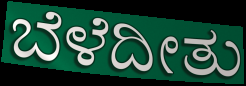
ಬೆಳೆದೀತು